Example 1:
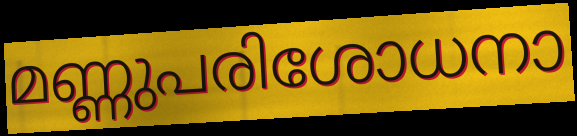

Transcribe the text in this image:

മണ്ണുപരിശോധനാ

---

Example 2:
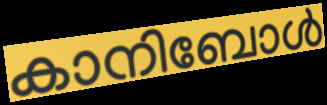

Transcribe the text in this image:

കാനിബോൾ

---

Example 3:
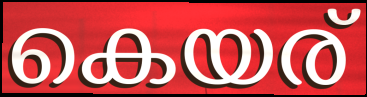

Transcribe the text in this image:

കെയര്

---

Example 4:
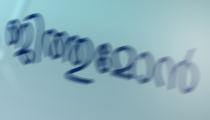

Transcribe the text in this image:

ജിത്തുമോൻ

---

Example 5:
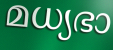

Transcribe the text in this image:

മധ്യഭാ